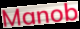
Manob